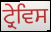
ਟ੍ਰੇਵਿਸ